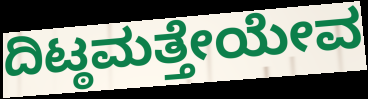
ದಿಟ್ಠಮತ್ತೇಯೇವ